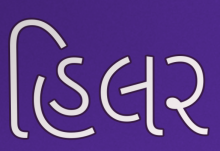
હિલર